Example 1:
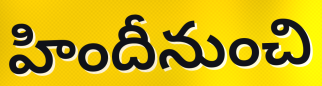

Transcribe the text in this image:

హిందీనుంచి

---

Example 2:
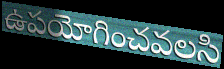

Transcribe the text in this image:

ఉపయోగించవలసి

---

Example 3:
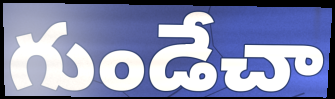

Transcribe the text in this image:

గుండేచా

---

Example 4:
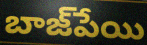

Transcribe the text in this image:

బాజ్‌పేయి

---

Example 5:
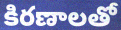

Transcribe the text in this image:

కిరణాలతో